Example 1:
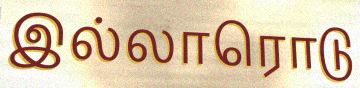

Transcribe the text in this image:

இல்லாரொடு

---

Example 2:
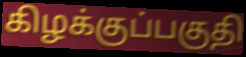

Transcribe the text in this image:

கிழக்குப்பகுதி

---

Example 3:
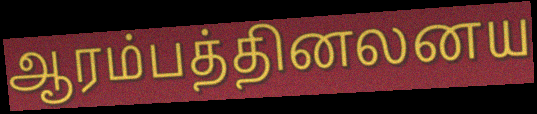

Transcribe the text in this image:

ஆரம்பத்தினலனய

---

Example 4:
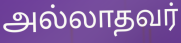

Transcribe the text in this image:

அல்லாதவர்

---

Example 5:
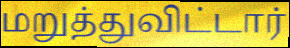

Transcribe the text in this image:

மறுத்துவிட்டார்